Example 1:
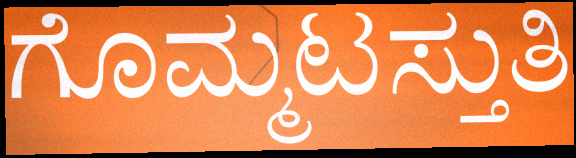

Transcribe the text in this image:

ಗೊಮ್ಮಟಸ್ತುತಿ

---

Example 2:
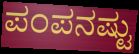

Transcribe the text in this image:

ಪಂಪನಷ್ಟು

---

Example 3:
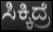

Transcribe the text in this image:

ಸಿಕ್ಕಿದ್ರೆ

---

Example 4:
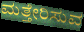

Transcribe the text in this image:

ಮತ್ತೇರಿಸುವ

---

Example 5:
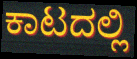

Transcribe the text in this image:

ಕಾಟದಲ್ಲಿ